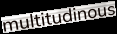
multitudinous